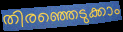
തിരഞ്ഞെടുക്കാം